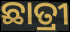
ଛାତ୍ରୀ